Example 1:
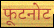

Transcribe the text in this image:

फूटनोट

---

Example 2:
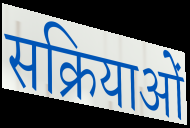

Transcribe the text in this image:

सक्रियाओं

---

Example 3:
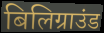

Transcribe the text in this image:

बिलिग्राउंड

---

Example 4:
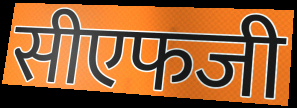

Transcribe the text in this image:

सीएफजी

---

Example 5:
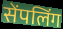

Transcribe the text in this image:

सेंपलिंग